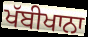
ਖੱਬੀਖਾਨਾ